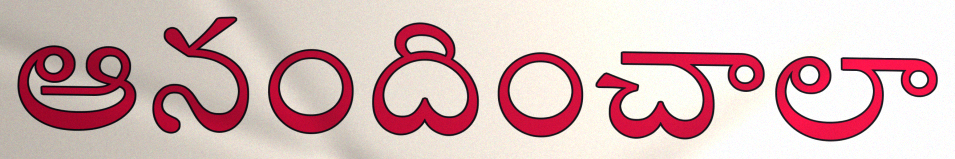
ఆనందించాలా